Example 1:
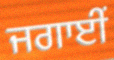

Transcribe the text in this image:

ਜਗਾਈਂ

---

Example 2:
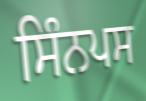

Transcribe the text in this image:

ਸਿੰਨਪਸ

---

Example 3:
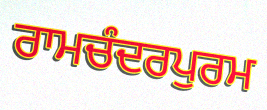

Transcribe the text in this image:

ਰਾਮਚੰਦਰਪੁਰਮ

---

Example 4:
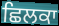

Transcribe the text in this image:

ਛਿਲਕਾ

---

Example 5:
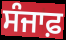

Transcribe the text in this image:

ਸੰਜਾਫ਼